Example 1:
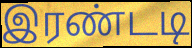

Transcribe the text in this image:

இரண்டடி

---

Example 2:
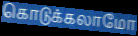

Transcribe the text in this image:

கொடுக்கலாமோ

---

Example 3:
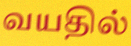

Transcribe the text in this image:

வயதில்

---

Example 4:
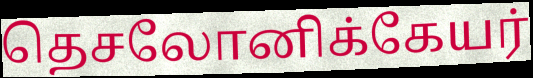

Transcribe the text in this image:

தெசலோனிக்கேயர்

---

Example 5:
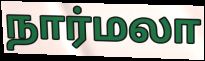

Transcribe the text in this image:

நார்மலா